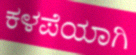
ಕಳಪೆಯಾಗಿ